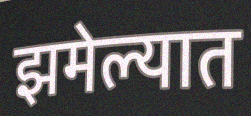
झमेल्यात